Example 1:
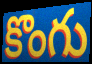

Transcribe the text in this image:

కొంగు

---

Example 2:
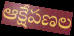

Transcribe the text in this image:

ఆక్షేపణల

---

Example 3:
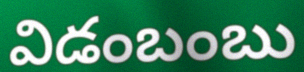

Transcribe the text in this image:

విడంబంబు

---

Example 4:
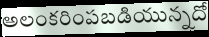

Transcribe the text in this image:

అలంకరింపబడియున్నదో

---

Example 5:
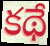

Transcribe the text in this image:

కథే